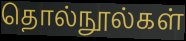
தொல்நூல்கள்